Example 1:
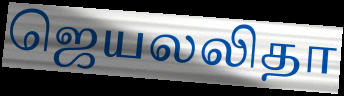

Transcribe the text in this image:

ஜெயலலிதா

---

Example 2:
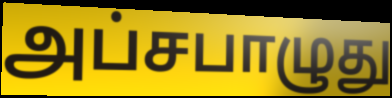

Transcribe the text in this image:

அப்சபாழுது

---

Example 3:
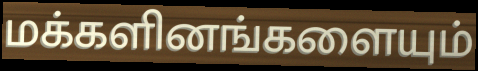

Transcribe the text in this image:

மக்களினங்களையும்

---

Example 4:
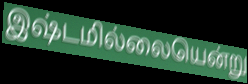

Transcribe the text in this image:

இஷ்டமில்லையென்று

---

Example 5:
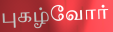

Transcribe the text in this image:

புகழ்வோர்